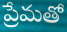
ప్రేమతో